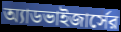
অ্যাডভাইজার্সের